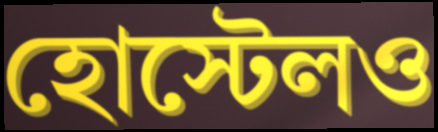
হোস্টেলও